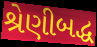
શ્રેણીબદ્ધ